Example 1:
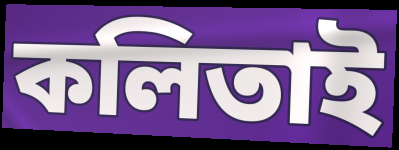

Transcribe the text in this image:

কলিতাই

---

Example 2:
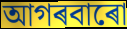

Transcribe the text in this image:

আগৰবাৰো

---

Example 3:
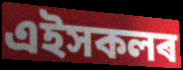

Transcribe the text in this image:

এইসকলৰ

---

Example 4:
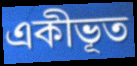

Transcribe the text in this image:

একীভূত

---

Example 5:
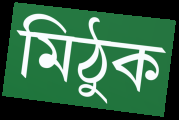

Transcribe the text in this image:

মিঠুক